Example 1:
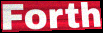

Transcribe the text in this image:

Forth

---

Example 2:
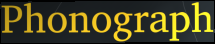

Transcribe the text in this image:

Phonograph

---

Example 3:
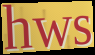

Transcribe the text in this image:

hws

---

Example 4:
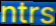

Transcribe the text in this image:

ntrs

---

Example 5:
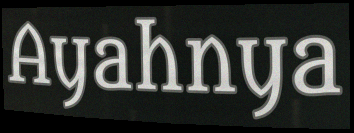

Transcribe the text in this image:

Ayahnya